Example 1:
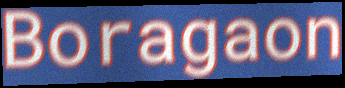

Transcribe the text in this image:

Boragaon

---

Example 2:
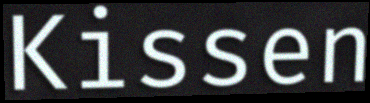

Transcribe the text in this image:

Kissen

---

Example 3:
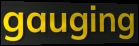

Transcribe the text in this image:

gauging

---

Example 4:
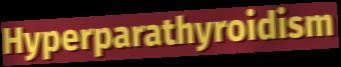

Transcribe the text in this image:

Hyperparathyroidism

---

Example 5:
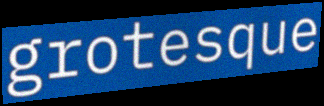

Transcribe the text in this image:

grotesque